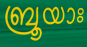
ബ്രൂയാഃ